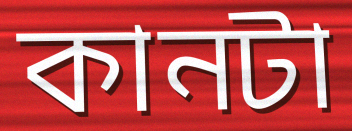
কানটা